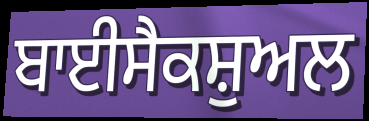
ਬਾਈਸੈਕਸ਼ੁਅਲ